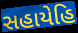
સહાયેહિ